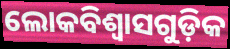
ଲୋକବିଶ୍ୱାସଗୁଡ଼ିକ